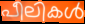
പീലികൾ